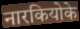
नारकियोके